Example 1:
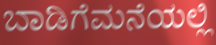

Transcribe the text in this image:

ಬಾಡಿಗೆಮನೆಯಲ್ಲಿ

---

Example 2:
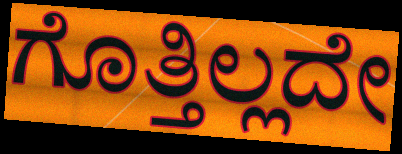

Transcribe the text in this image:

ಗೊತ್ತಿಲ್ಲದೇ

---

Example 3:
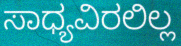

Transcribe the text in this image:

ಸಾಧ್ಯವಿರಲಿಲ್ಲ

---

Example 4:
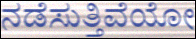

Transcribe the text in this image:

ನಡೆಸುತ್ತಿವೆಯೋ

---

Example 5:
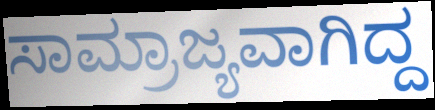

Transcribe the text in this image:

ಸಾಮ್ರಾಜ್ಯವಾಗಿದ್ದ